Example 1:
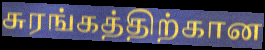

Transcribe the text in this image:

சுரங்கத்திற்கான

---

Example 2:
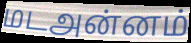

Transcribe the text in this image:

மடஅன்னம்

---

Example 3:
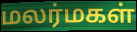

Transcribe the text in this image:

மலர்மகள்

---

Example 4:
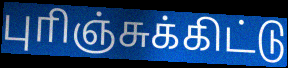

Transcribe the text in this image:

புரிஞ்சுக்கிட்டு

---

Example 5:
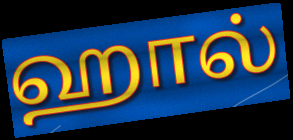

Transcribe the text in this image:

ஹால்